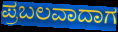
ಪ್ರಬಲವಾದಾಗ